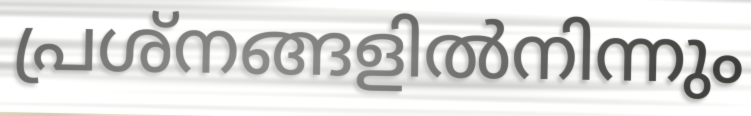
പ്രശ്നങ്ങളിൽനിന്നും